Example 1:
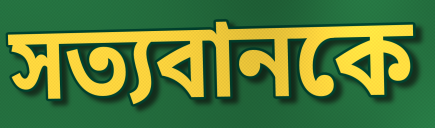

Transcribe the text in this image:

সত্যবানকে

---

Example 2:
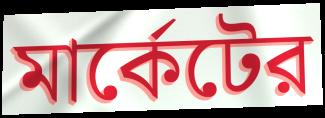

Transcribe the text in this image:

মার্কেটের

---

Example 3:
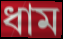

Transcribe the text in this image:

ধাম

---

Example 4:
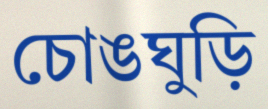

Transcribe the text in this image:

চোঙঘুড়ি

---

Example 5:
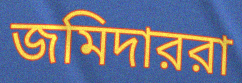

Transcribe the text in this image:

জমিদাররা